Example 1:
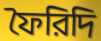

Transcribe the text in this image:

ফৈরিদি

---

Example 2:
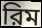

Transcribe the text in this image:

রিম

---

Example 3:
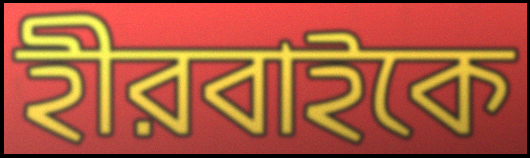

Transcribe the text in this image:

হীরবাইকে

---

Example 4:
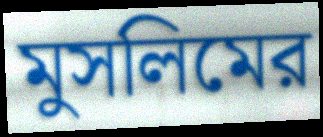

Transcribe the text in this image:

মুসলিমের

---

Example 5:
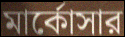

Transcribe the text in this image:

মার্কোসার